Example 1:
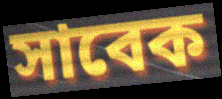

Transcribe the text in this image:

সাবেক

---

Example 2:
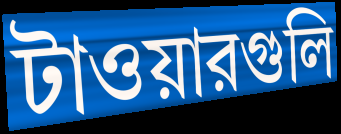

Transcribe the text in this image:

টাওয়ারগুলি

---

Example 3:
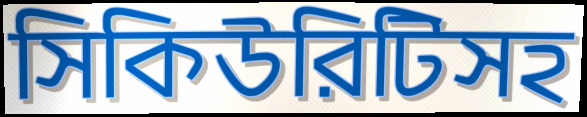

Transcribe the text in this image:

সিকিউরিটিসহ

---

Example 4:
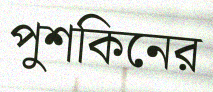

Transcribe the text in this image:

পুশকিনের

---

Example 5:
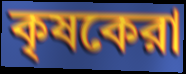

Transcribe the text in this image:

কৃষকেরা